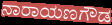
ನಾರಾಯಣಗೌಡ